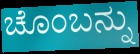
ಚೊಂಬನ್ನು